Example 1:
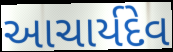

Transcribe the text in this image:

આચાર્યદેવ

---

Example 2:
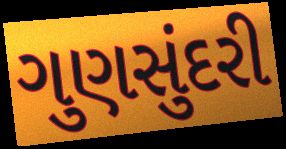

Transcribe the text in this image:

ગુણસુંદરી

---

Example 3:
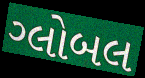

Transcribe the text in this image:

ગ્લોબલ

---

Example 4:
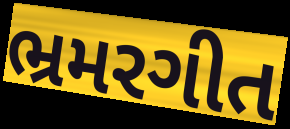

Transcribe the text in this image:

ભ્રમરગીત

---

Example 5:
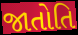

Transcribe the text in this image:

જાતોતિ